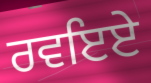
ਰਵਇਏ